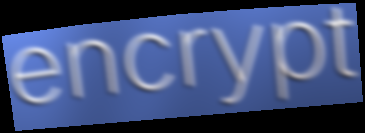
encrypt